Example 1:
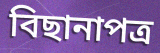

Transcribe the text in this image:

বিছানাপত্র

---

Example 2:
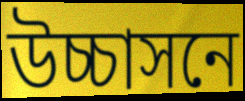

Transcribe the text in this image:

উচ্চাসনে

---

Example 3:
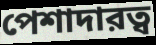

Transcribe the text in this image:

পেশাদারত্ব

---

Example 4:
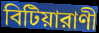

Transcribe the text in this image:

বিটিয়ারাণী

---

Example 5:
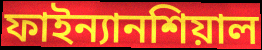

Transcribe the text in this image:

ফাইন্যানশিয়াল